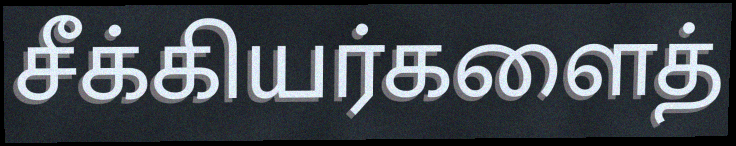
சீக்கியர்களைத்